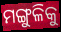
ମଙ୍ଗୁଳିକୁ